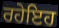
ਰਹੇਇਹ